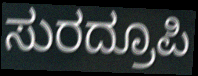
ಸುರದ್ರೂಪಿ